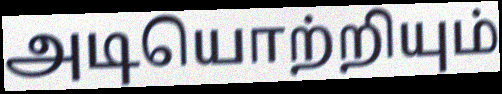
அடியொற்றியும்